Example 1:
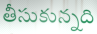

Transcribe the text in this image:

తీసుకున్నది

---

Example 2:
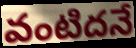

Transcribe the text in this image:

వంటిదనే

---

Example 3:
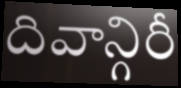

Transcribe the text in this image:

దివాన్గిరీ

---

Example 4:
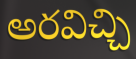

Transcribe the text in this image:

అరవిచ్చి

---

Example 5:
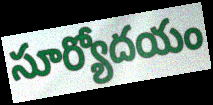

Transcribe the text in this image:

సూర్యోదయం